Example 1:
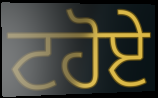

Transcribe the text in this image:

ਟਹੋਏ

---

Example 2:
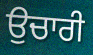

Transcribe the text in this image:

ਉਚਾਰੀ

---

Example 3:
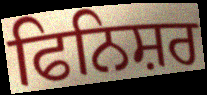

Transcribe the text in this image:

ਫਿਨਿਸ਼ਰ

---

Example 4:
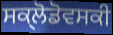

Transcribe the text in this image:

ਸਕ੍ਲੋਡੋਵਸਕੀ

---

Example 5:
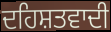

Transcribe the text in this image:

ਦਹਿਸ਼ਤਵਾਦੀ